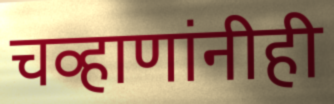
चव्हाणांनीही